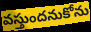
వస్తుందనుకోను